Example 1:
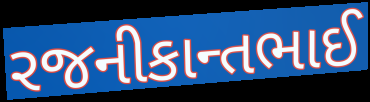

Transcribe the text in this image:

રજનીકાન્તભાઈ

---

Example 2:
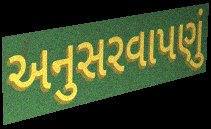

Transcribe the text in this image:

અનુસરવાપણું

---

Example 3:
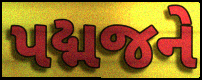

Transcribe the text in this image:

પદ્મજને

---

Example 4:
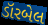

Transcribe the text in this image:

ડૉરબેલ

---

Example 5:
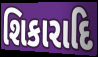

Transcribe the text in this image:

શિકારાદિ